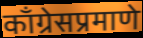
काँग्रेसप्रमाणे